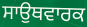
ਸਾਉਥਵਾਰਕ